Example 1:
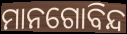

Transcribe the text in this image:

ମାନଗୋବିନ୍ଦ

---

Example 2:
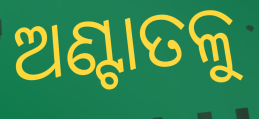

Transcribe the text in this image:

ଅଣ୍ଟାତଳୁ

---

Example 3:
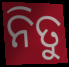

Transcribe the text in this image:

ନିତୁ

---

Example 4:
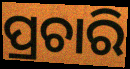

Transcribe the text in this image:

ପ୍ରଚାରି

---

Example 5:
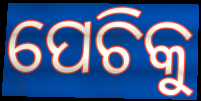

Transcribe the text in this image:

ପେଚିକୁ